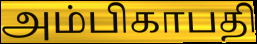
அம்பிகாபதி